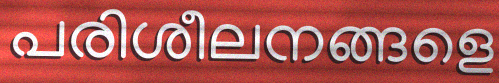
പരിശീലനങ്ങളെ